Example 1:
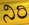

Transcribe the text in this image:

ನಿರಿ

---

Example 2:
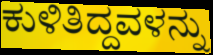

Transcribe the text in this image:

ಕುಳಿತಿದ್ದವಳನ್ನು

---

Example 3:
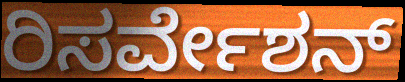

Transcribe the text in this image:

ರಿಸರ್ವೇಶನ್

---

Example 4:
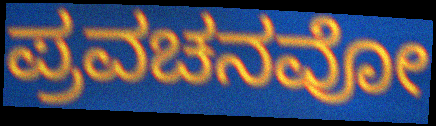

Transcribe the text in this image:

ಪ್ರವಚನವೋ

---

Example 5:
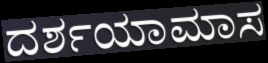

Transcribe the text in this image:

ದರ್ಶಯಾಮಾಸ